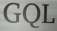
GQL